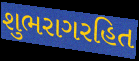
શુભરાગરહિત